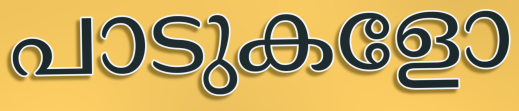
പാടുകളോ